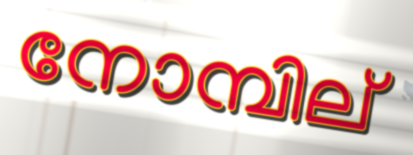
നോമ്പില്